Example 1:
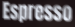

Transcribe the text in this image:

Espresso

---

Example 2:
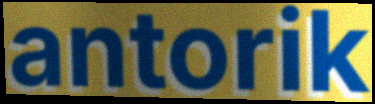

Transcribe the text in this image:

antorik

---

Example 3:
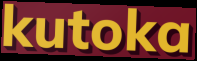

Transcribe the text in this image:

kutoka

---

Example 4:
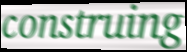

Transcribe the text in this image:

construing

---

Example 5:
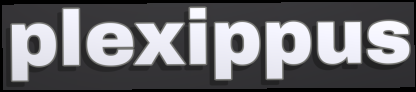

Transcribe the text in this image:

plexippus